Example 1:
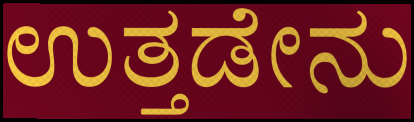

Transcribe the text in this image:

ಉತ್ತಡೇನು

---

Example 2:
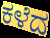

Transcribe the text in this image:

ಕಳೆದ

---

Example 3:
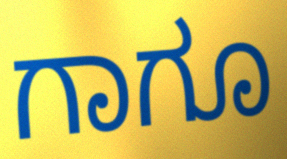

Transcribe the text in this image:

ಗಾಗೂ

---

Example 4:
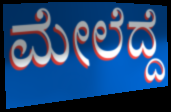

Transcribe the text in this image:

ಮೇಲೆದ್ದೆ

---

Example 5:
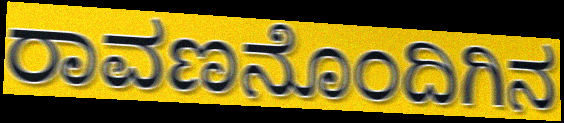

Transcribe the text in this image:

ರಾವಣನೊಂದಿಗಿನ